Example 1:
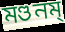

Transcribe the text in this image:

মণ্ডনম্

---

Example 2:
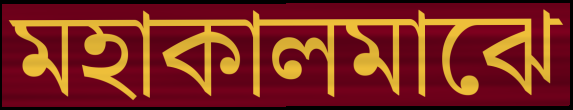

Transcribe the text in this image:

মহাকালমাঝে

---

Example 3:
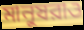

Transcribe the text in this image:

মানুষরাও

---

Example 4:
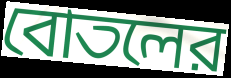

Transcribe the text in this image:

বোতলের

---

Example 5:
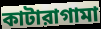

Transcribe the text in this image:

কাটারাগামা